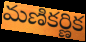
మణికర్ణిక